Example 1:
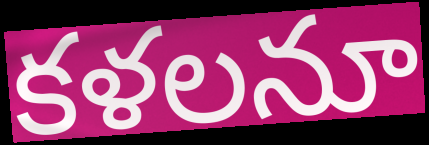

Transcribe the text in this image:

కళలనూ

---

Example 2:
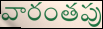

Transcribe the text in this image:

వారంతపు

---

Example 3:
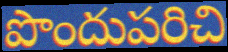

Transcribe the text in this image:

పొందుపరిచి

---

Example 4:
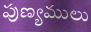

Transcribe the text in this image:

పుణ్యములు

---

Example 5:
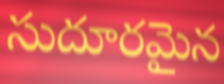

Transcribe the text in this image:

సుదూరమైన